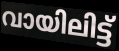
വായിലിട്ട്